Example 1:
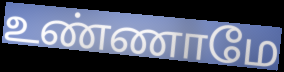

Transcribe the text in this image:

உண்ணாமே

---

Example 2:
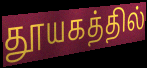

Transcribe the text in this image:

தூயகத்தில்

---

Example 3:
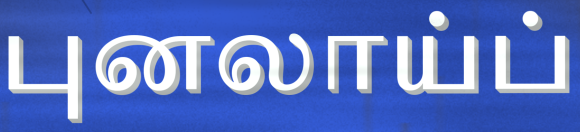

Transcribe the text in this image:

புனலாய்ப்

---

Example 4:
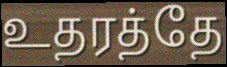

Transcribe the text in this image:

உதரத்தே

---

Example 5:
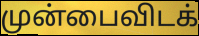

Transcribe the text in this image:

முன்பைவிடக்